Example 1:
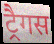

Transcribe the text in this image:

ट्रैगस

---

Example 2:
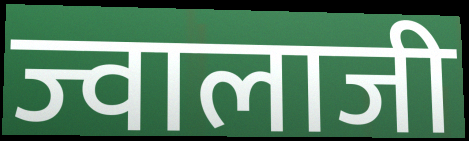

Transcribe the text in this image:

ज्वालाजी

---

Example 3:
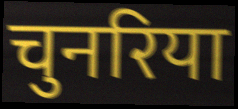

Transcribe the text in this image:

चुनरिया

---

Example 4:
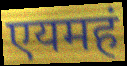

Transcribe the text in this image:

एयमहं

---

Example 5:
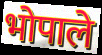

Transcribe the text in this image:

भोपाले